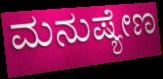
ಮನುಷ್ಯೇಣ